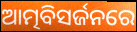
ଆତ୍ମବିସର୍ଜନରେ